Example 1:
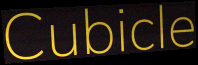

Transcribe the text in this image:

Cubicle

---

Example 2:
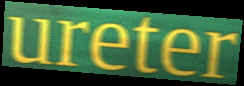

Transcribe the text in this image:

ureter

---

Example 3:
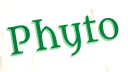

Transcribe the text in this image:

Phyto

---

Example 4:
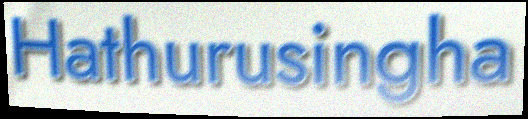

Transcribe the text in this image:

Hathurusingha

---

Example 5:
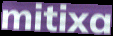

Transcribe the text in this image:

mitixa